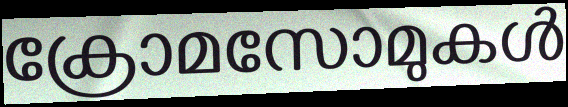
ക്രോമസോമുകൾ